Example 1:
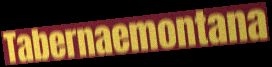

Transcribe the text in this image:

Tabernaemontana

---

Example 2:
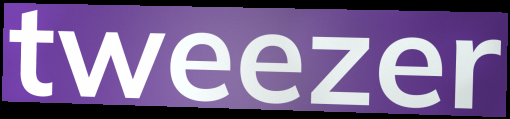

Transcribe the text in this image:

tweezer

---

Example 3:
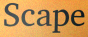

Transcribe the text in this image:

Scape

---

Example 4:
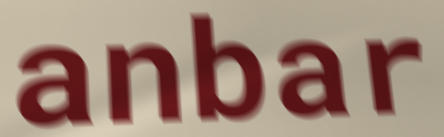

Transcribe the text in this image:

anbar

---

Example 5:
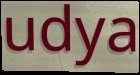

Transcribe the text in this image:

udya